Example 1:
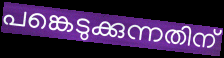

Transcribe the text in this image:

പങ്കെടുക്കുന്നതിന്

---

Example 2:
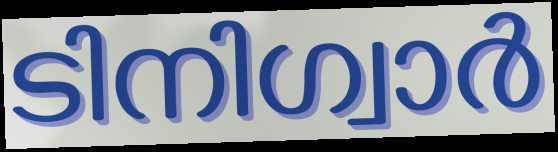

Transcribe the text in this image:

ടിനിഗ്വാർ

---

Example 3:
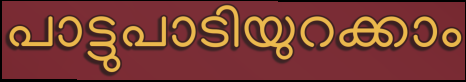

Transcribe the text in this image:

പാട്ടുപാടിയുറക്കാം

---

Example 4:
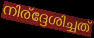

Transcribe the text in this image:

നിര്ദ്ദേശിച്ചത്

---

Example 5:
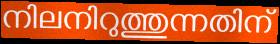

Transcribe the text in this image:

നിലനിറുത്തുന്നതിന്